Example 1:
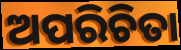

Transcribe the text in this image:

ଅପରିଚିତା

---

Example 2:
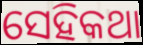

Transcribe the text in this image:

ସେହିକଥା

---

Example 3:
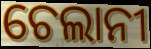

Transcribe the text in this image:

ଚେଲାନୀ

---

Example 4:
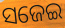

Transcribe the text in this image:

ସଜେଇ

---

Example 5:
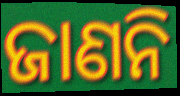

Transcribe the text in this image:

ଜାଣନି